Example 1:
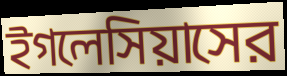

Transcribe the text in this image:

ইগলেসিয়াসের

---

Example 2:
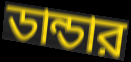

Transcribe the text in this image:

ডান্ডার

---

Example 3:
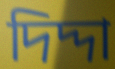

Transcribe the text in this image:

দিদ্দা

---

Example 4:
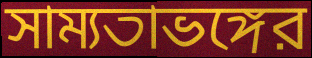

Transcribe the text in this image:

সাম্যতাভঙ্গের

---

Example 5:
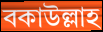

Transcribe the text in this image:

বকাউল্লাহ